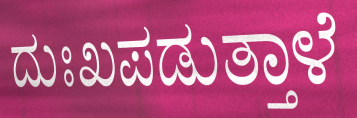
ದುಃಖಪಡುತ್ತಾಳೆ